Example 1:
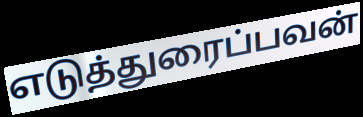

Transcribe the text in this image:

எடுத்துரைப்பவன்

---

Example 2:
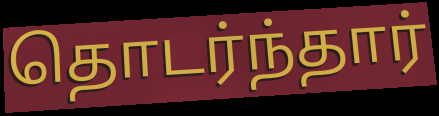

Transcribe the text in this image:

தொடர்ந்தார்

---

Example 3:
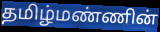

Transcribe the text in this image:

தமிழ்மண்ணின்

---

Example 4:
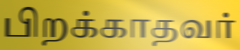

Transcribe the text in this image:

பிறக்காதவர்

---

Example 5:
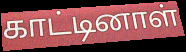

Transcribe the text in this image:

காட்டினாள்